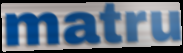
matru